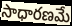
సాధారణమే